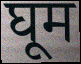
घूम